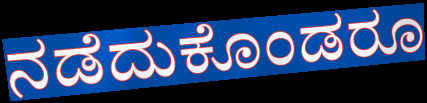
ನಡೆದುಕೊಂಡರೂ